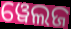
ୱେଲଜ